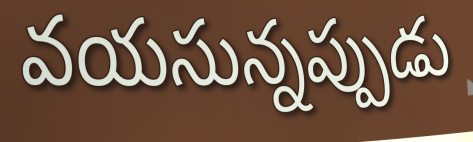
వయసున్నప్పుడు